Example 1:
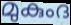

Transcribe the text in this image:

മുകുംദ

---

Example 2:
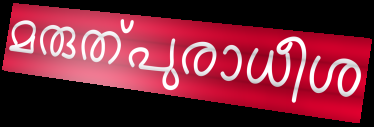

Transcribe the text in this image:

മരുത്പുരാധീശ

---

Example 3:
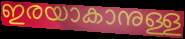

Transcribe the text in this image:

ഇരയാകാനുള്ള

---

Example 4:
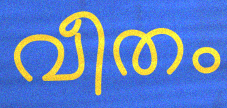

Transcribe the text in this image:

വീതം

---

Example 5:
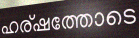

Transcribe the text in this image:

ഹര്ഷത്തോടെ